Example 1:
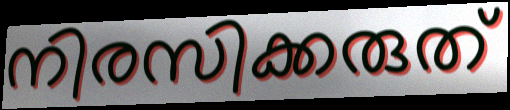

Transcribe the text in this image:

നിരസിക്കരുത്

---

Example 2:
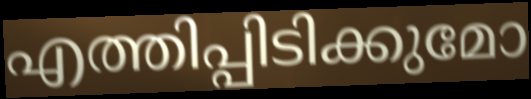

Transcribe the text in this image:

എത്തിപ്പിടിക്കുമോ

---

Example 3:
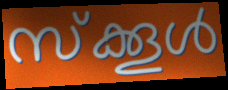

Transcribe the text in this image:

സ്ക്കൂൾ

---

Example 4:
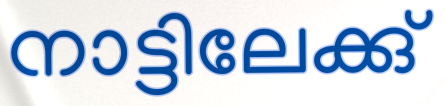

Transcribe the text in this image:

നാട്ടിലേക്കു്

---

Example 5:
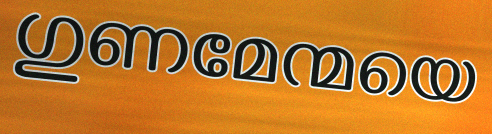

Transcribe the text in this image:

ഗുണമേന്മയെ